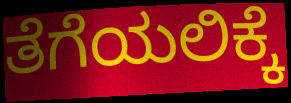
ತೆಗೆಯಲಿಕ್ಕೆ